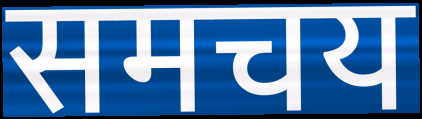
समचय